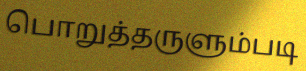
பொறுத்தருளும்படி